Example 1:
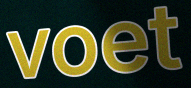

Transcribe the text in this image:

voet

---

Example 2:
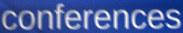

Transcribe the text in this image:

conferences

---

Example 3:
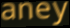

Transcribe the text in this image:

aney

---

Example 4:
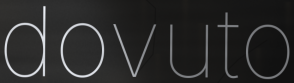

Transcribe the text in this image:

dovuto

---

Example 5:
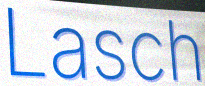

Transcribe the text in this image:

Lasch